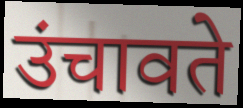
उंचावते